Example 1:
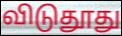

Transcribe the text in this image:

விடுதூது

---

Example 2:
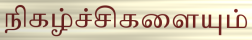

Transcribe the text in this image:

நிகழ்ச்சிகளையும்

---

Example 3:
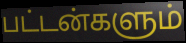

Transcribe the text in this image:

பட்டன்களும்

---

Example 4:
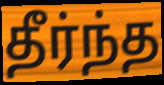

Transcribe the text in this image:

தீர்ந்த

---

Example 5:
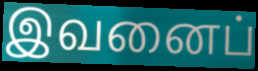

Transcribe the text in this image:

இவனைப்